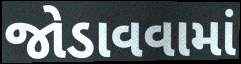
જોડાવવામાં